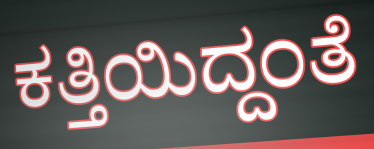
ಕತ್ತಿಯಿದ್ದಂತೆ